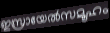
ഇസ്രായേൽസമൂഹം